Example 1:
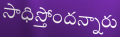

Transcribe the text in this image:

సాధిస్తోందన్నారు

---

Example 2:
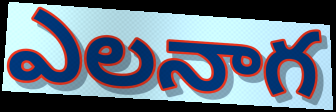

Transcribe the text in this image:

ఎలనాగ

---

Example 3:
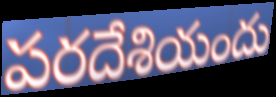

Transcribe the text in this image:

పరదేశియందు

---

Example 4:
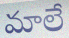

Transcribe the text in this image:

మాలే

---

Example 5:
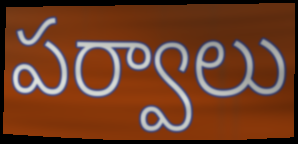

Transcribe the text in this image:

పర్వాలు